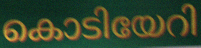
കൊടിയേറി